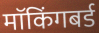
मॉकिंगबर्ड